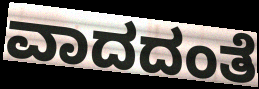
ವಾದದಂತೆ